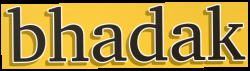
bhadak